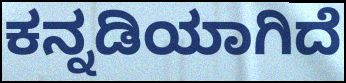
ಕನ್ನಡಿಯಾಗಿದೆ